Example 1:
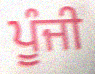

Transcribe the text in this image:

ਪੂੰਜੀ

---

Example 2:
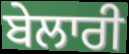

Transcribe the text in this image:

ਬੇਲਾਰੀ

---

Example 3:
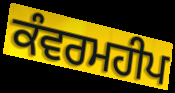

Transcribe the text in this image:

ਕੰਵਰਮਹੀਪ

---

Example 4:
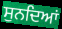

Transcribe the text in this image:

ਸੁਨਦਿਆਂ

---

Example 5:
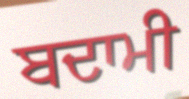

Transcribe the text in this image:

ਬਦਾਮੀ